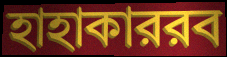
হাহাকাররব